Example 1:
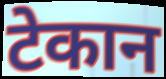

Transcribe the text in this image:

टेकान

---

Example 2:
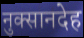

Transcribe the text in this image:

नुक्सानदेह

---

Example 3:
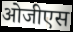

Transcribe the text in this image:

ओजीएस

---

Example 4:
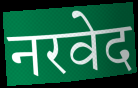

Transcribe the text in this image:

नरवेद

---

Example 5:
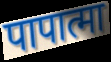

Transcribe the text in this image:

पापात्मा